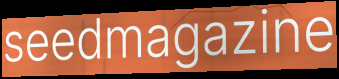
seedmagazine